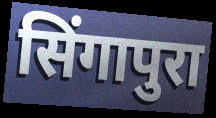
सिंगापुरा